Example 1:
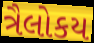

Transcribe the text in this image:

ત્રૈલોકય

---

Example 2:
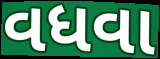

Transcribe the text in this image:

વધવા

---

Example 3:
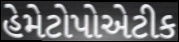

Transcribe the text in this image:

હેમેટોપોએટીક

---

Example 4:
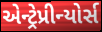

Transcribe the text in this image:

એન્ટ્રેપ્રીન્યોર્સ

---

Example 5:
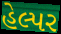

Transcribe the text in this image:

હેલ્પર